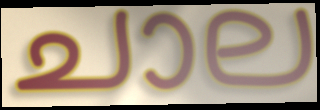
ചാല